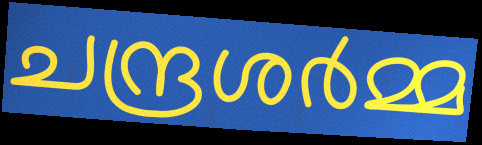
ചന്ദ്രശർമ്മ